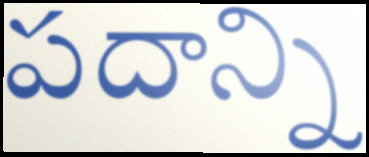
పదాన్ని